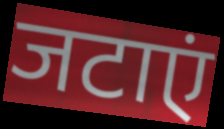
जटाएं